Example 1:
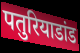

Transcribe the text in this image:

पतुरियाडांड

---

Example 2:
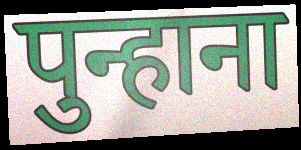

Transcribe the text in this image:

पुन्हाना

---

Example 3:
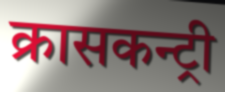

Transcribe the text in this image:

क्रासकन्ट्री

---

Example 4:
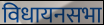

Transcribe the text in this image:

विधायनसभा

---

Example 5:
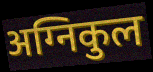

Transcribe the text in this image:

अग्निकुल